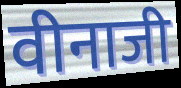
वीनाजी